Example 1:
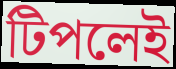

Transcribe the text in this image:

টিপলেই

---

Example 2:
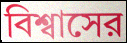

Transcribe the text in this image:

বিশ্বাসের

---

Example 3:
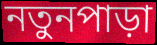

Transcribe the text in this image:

নতুনপাড়া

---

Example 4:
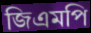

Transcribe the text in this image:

জিএমপি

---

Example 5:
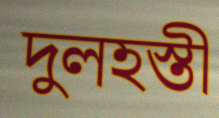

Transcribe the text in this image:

দুলহস্তী